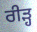
ਰੀੜ੍ਹ